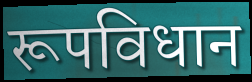
रूपविधान